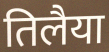
तिलैया